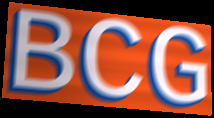
BCG